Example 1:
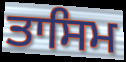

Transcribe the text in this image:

ਤਾਸਿਮ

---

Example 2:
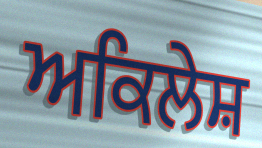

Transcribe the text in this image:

ਅਕਿਲੇਸ਼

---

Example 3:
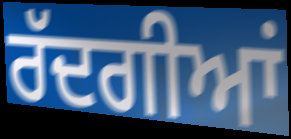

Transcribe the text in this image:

ਰੱਦਗੀਆਂ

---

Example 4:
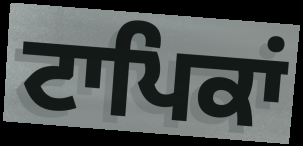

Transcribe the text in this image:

ਟਾਪਿਕਾਂ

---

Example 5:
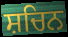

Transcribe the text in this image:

ਸ਼ਚਿਨ